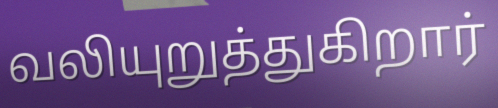
வலியுறுத்துகிறார்